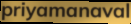
priyamanaval